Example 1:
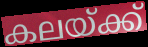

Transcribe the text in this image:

കലയ്ക്ക്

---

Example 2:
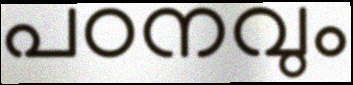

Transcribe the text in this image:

പഠനവും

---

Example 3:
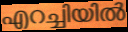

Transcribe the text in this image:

എറച്ചിയിൽ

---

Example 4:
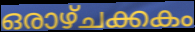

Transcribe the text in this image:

ഒരാഴ്ചക്കകം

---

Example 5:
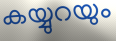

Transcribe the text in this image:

കയ്യുറയും